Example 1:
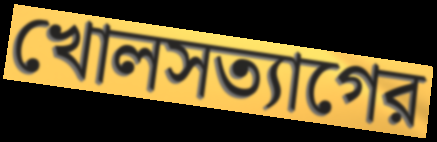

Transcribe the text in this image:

খোলসত্যাগের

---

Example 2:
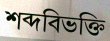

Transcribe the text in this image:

শব্দবিভক্তি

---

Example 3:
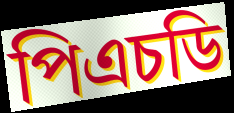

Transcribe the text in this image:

পিএচডি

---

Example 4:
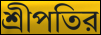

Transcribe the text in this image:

শ্রীপতির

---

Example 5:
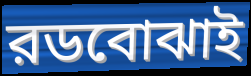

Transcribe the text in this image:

রডবোঝাই